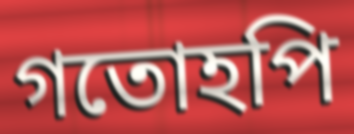
গতোহপি